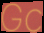
Gc